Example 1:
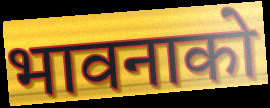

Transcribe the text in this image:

भावनाको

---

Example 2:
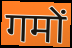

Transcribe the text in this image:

गमों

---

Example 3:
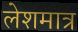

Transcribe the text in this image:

लेशमात्र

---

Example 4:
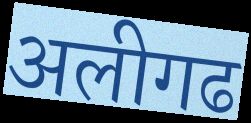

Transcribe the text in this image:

अलीगढ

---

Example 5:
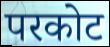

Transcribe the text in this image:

परकोट